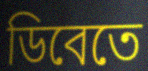
ডিবেতে